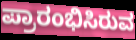
ಪ್ರಾರಂಭಿಸಿರುವ